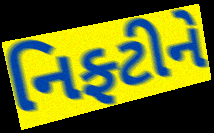
નિફ્ટીને